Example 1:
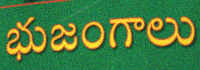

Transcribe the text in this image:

భుజంగాలు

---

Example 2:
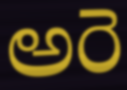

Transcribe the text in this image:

అరె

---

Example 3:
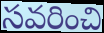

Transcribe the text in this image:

సవరించి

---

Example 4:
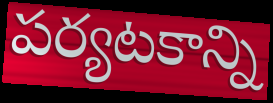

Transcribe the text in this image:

పర్యటకాన్ని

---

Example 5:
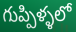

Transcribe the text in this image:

గుప్పిళ్ళలో